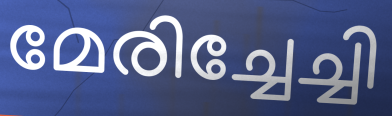
മേരിച്ചേച്ചി